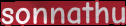
sonnathu